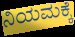
ನಿಯಮಕ್ಕೆ